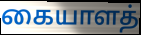
கையாளத்